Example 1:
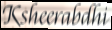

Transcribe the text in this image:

Ksheerabdhi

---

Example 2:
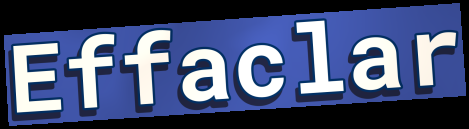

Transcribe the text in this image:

Effaclar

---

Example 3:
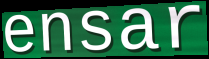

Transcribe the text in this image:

ensar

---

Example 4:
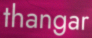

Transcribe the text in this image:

thangar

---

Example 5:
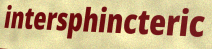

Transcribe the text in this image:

intersphincteric